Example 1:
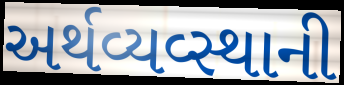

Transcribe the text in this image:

અર્થવ્યવ્સ્થાની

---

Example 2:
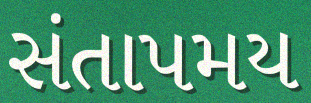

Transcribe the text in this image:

સંતાપમય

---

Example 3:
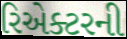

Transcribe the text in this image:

રિએક્ટરની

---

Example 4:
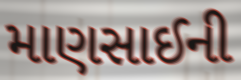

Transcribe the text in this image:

માણસાઈની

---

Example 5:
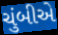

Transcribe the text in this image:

ચુંબીએ